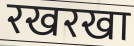
रखरखा